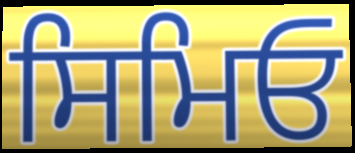
ਸਿਮਿਓ